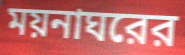
ময়নাঘরের